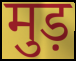
मुड़